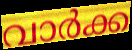
വാർക്ക